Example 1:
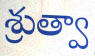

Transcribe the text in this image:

శ్రుత్వా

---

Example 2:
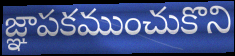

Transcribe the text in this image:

జ్ఞాపకముంచుకొని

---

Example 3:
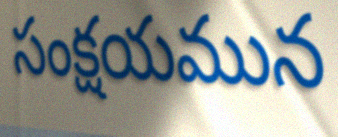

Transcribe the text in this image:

సంక్షయమున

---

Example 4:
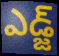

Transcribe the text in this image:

ఎడ్జ్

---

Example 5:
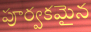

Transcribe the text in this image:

పూర్వకమైన